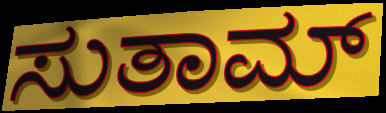
ಸುತಾಮ್